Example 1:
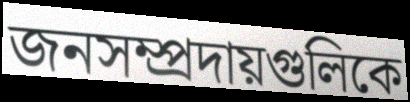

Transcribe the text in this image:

জনসম্প্রদায়গুলিকে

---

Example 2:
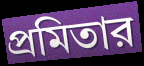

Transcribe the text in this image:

প্রমিতার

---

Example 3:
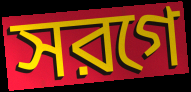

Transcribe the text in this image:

সরগে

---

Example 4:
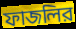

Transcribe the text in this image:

ফাজলির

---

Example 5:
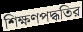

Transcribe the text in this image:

শিক্ষণপদ্ধতির